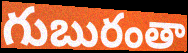
గుబురంతా